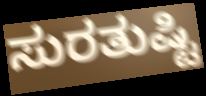
ಸುರತುಷ್ಟಿ